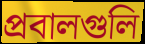
প্রবালগুলি